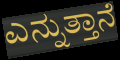
ಎನ್ನುತ್ತಾನೆ